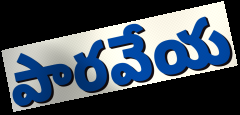
పారవేయ